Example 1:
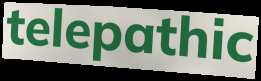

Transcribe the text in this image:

telepathic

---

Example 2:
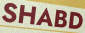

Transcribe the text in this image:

SHABD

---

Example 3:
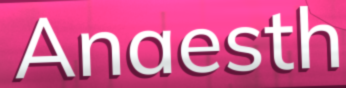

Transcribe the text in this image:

Anaesth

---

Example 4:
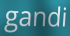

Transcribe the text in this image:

gandi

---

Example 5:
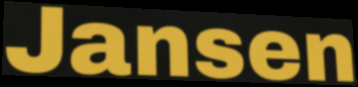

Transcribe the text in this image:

Jansen